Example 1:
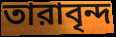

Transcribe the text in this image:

তারাবৃন্দ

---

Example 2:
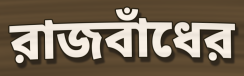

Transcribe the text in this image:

রাজবাঁধের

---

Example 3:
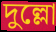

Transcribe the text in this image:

দুল্লো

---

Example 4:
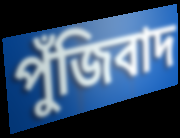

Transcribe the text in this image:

পুঁজিবাদ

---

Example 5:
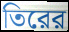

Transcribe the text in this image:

তিরের